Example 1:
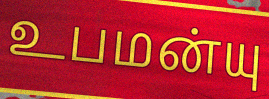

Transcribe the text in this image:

உபமன்யு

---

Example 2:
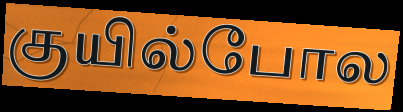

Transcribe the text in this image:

குயில்போல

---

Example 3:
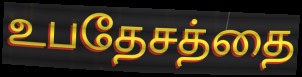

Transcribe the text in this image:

உபதேசத்தை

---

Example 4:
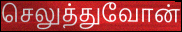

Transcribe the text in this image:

செலுத்துவோன்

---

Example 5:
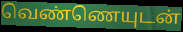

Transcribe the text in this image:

வெண்ணெயுடன்